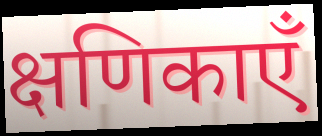
क्षणिकाएँ